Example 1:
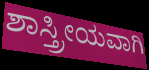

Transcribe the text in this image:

ಶಾಸ್ತ್ರೀಯವಾಗಿ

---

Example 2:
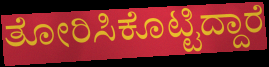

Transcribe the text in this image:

ತೋರಿಸಿಕೊಟ್ಟಿದ್ದಾರೆ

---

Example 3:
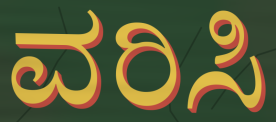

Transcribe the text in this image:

ವರಿಸಿ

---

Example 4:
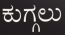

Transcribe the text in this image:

ಕುಗ್ಗಲು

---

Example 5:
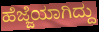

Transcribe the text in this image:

ಹೆಜ್ಜೆಯಾಗಿದ್ದು